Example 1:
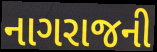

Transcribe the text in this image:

નાગરાજની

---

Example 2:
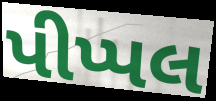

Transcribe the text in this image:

પીપ્પલ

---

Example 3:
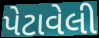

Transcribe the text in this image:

પેટાવેલી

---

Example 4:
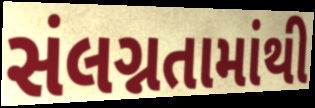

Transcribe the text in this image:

સંલગ્નતામાંથી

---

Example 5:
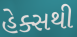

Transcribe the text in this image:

હેક્સથી